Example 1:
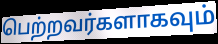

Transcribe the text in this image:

பெற்றவர்களாகவும்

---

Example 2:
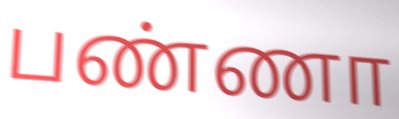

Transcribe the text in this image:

பண்ணா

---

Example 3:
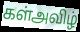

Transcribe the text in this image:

கள்அவிழ்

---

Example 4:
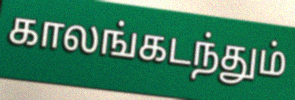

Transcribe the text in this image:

காலங்கடந்தும்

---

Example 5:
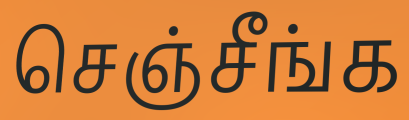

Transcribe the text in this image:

செஞ்சீங்க